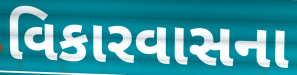
વિકારવાસના